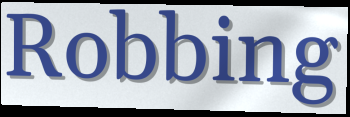
Robbing